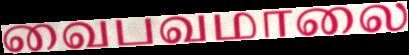
வைபவமாலை